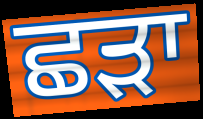
ਛਡ਼ਾ